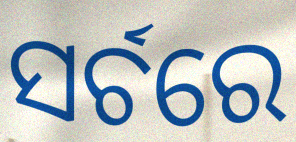
ସର୍ଚରେ